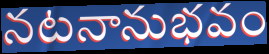
నటనానుభవం